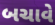
બચાવે